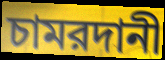
চামরদানী